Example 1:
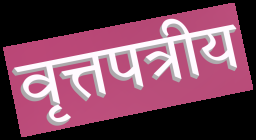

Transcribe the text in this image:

वृत्तपत्रीय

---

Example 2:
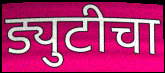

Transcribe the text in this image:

ड्युटीचा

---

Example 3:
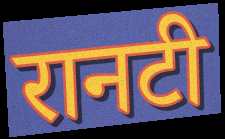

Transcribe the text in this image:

रानटी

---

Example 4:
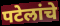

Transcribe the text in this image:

पटेलांचे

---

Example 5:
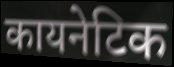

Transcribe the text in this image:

कायनेटिक